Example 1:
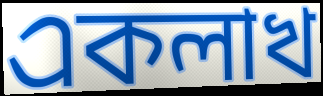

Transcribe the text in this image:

একলাখ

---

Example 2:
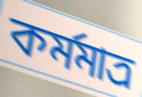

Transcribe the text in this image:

কর্মমাত্র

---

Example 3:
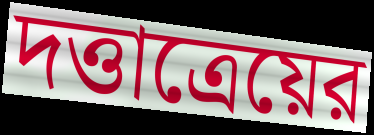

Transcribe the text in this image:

দত্তাত্রেয়ের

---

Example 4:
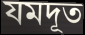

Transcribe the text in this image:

যমদূত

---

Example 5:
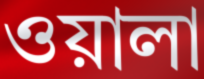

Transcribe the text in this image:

ওয়ালা